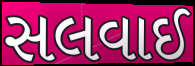
સલવાઈ